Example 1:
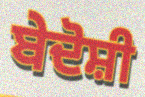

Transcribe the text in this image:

ਬੇਦੋਸ਼ੀ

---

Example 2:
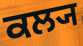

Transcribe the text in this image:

ਕਲ੍ਯ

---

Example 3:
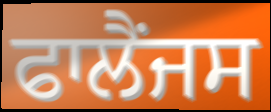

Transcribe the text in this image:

ਫਾਲੈਂਜਸ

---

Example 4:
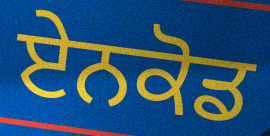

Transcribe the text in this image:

ਏਨਕੋਡ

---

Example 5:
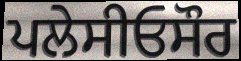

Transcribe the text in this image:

ਪਲੇਸੀਓਸੌਰ